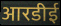
आरडीई